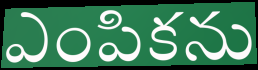
ఎంపికను